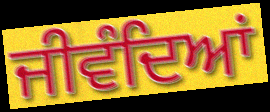
ਜੀਵੰਦਿਆਂ